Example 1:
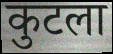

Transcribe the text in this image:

कुटला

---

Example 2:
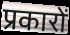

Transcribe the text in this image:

प्रकारों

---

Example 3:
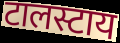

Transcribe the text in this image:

टालस्टाय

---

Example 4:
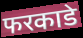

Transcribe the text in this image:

फरकाडे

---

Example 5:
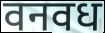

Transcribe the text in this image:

वनवध